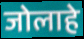
जोलाहे